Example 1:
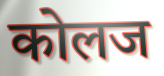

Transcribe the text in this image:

कोलज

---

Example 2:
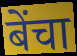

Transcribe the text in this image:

बेंचा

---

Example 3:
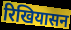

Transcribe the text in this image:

रिखियासन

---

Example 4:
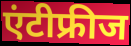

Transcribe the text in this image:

एंटीफ्रीज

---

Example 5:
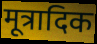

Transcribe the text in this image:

मूत्रादिक